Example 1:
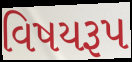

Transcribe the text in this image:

વિષયરૂપ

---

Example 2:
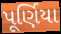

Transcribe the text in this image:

પૂર્ણિયા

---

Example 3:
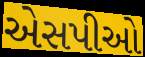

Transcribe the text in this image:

એસપીઓ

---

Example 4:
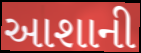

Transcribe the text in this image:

આશાની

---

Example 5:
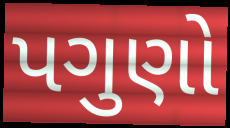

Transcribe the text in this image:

પગુણો